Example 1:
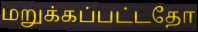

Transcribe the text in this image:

மறுக்கப்பட்டதோ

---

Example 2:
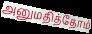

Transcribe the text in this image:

அனுமதித்தோம்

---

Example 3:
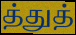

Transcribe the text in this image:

த்துத்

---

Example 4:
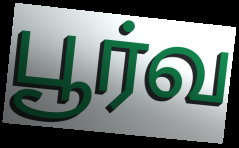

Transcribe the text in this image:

பூர்வ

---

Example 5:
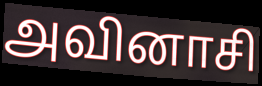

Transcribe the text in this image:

அவினாசி